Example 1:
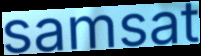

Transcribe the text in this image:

samsat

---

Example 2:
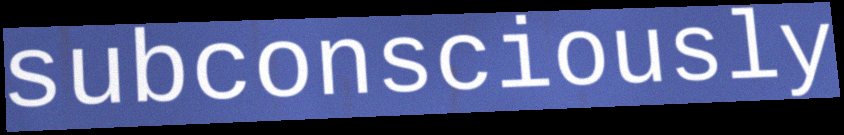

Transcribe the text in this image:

subconsciously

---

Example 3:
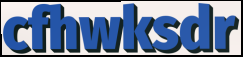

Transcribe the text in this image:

cfhwksdr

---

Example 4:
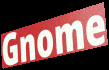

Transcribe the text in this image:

Gnome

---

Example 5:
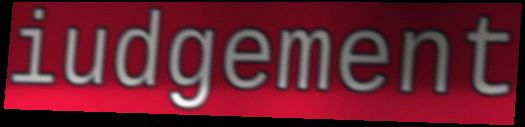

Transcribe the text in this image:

iudgement